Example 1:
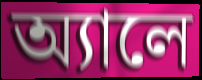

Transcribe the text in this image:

অ্যালে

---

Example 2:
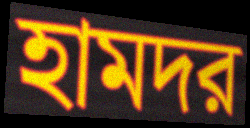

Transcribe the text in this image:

হামদর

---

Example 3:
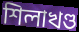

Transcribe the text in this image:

শিলাখণ্ড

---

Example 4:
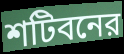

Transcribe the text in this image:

শটিবনের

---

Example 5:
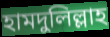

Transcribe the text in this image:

হামদুলিল্লাহ